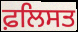
ਫ਼ਲਿਸਤ